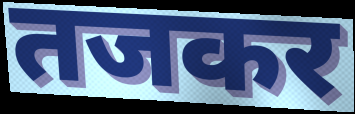
तजकर